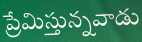
ప్రేమిస్తున్నవాడు